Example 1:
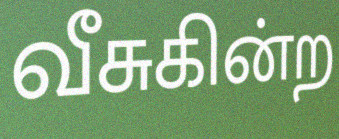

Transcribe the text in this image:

வீசுகின்ற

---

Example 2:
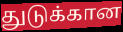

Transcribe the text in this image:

துடுக்கான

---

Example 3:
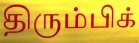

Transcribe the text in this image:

திரும்பிக்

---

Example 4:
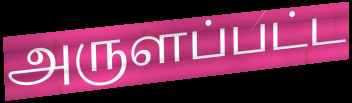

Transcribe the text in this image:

அருளப்பட்ட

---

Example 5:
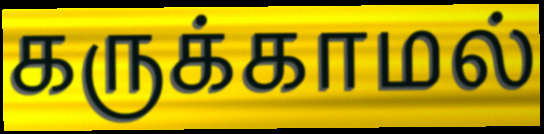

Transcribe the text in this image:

கருக்காமல்